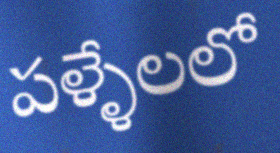
పళ్ళేలలో